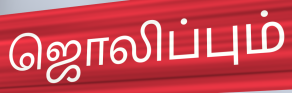
ஜொலிப்பும்